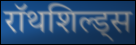
रॉथशिल्ड्स